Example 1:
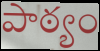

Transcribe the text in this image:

పాఠ్యం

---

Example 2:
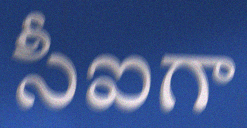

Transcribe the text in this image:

సీఐగా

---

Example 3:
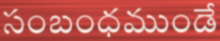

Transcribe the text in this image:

సంబంధముండే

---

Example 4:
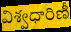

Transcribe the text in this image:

విశ్వధారిణీ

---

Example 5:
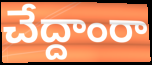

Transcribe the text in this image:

చేద్దాంరా